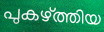
പുകഴ്ത്തിയ